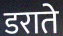
डराते